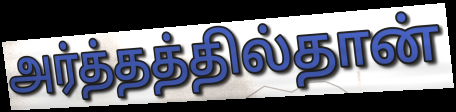
அர்த்தத்தில்தான்